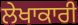
ਲੇਖਾਕਾਰੀ